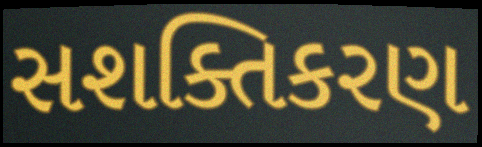
સશક્તિકરણ